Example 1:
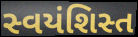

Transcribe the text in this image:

સ્વયંશિસ્ત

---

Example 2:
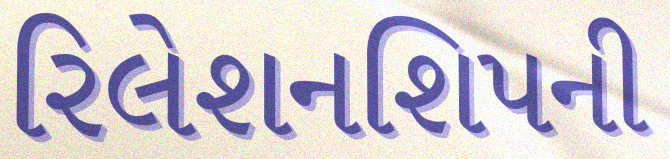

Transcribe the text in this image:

રિલેશનશિપની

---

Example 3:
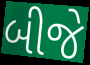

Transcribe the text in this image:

બીજે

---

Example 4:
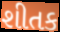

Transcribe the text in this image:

શીતક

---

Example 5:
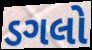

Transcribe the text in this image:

ડગલો